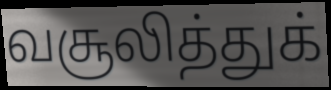
வசூலித்துக்